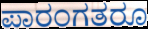
ಪಾರಂಗತರೂ